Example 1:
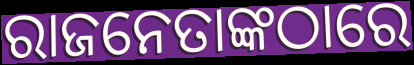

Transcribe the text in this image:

ରାଜନେତାଙ୍କଠାରେ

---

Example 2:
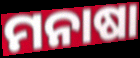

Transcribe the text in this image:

ମନାଷା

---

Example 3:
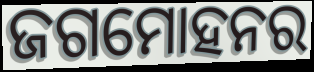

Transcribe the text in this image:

ଜଗମୋହନର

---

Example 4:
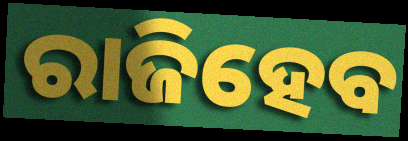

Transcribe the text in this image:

ରାଜିହେବ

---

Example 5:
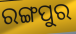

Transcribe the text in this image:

ରଙ୍ଗପୁର